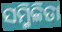
ସମ୍ମିଳିତା